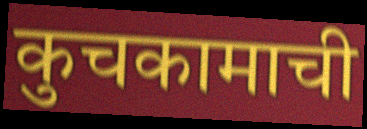
कुचकामाची